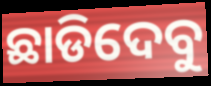
ଛାଡିଦେବୁ